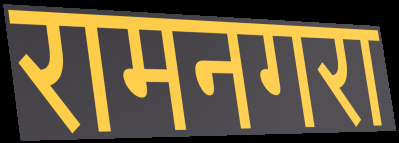
रामनगरा